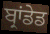
ਬ੍ਰਾਂਡੇਡ